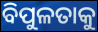
ବିପୁଳତାକୁ